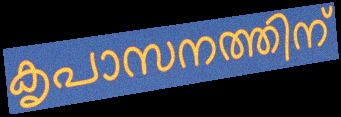
കൃപാസനത്തിന്